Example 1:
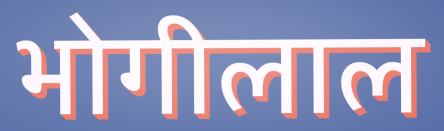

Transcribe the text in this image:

भोगीलाल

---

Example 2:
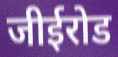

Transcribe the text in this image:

जीईरोड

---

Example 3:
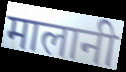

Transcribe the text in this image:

मालानी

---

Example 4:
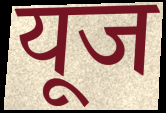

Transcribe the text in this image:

यूज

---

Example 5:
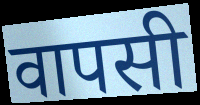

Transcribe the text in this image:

वापसी